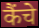
कैंचे